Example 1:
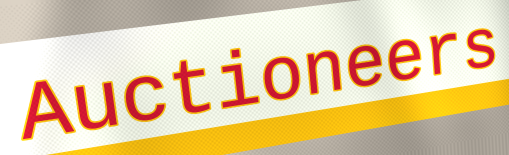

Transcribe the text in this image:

Auctioneers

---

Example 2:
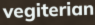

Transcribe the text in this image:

vegiterian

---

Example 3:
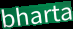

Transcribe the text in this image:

bharta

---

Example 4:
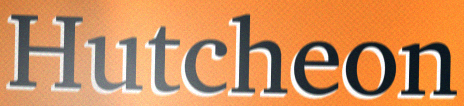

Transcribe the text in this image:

Hutcheon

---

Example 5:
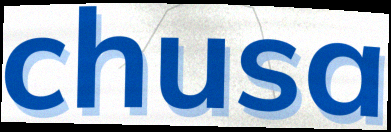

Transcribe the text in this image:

chusa